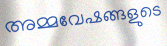
അമ്മവേഷങ്ങളുടെ